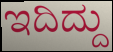
ಇದಿದ್ದು